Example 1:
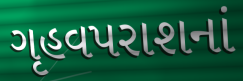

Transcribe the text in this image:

ગૃહવપરાશનાં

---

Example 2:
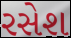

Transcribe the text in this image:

રસેશ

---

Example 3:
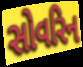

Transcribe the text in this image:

સોવરિન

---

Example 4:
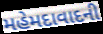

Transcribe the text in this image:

મહેમદાવાદની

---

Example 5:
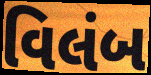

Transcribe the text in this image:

વિલંબ